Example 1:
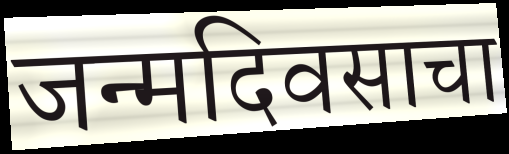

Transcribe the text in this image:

जन्मदिवसाचा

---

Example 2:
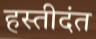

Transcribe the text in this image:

हस्तीदंत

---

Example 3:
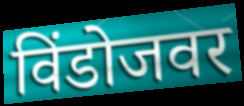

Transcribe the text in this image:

विंडोजवर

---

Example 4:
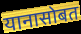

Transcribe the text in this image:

यानासोबत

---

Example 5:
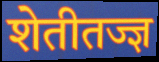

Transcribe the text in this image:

शेतीतज्ज्ञ